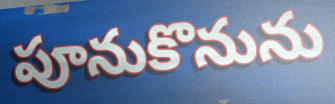
పూనుకొనును